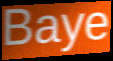
Baye